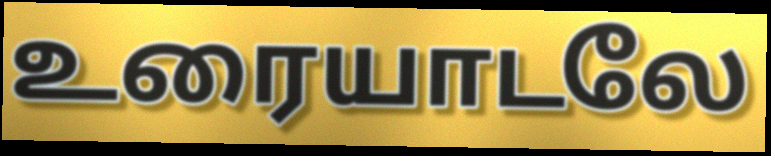
உரையாடலே